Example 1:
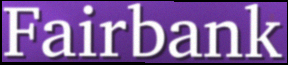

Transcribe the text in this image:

Fairbank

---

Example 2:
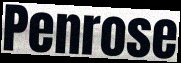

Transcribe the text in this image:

Penrose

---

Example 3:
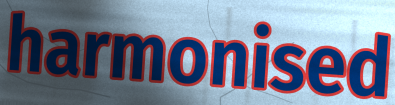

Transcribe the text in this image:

harmonised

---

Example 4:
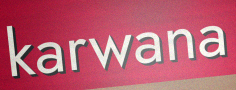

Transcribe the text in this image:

karwana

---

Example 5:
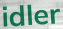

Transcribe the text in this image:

idler